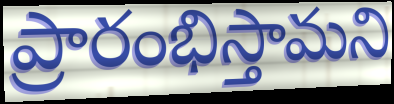
ప్రారంభిస్తామని